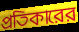
প্রতিকারের